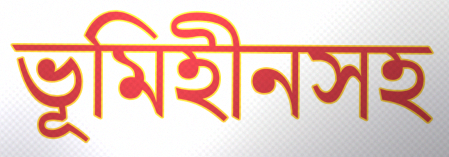
ভূমিহীনসহ